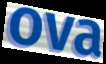
ova